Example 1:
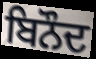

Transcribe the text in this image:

ਬਿਨੌਦ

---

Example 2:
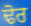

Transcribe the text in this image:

ਢੋਰ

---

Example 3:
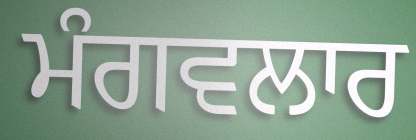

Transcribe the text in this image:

ਮੰਗਵਲਾਰ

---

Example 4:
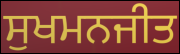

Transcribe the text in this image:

ਸੁਖਮਨਜੀਤ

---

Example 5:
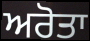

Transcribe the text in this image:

ਅਰੋਤਾ